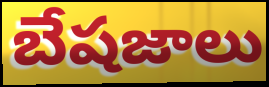
బేషజాలు